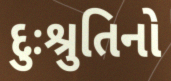
દુઃશ્રુતિનો